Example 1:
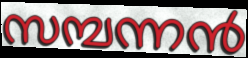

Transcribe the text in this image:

സമ്പന്നൻ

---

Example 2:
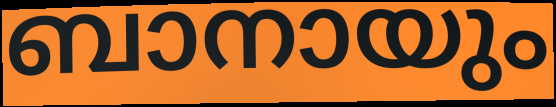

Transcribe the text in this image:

ബാനായും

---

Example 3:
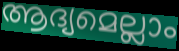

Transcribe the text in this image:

ആദ്യമെല്ലാം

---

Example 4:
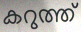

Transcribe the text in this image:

കറുത്ത്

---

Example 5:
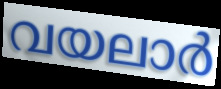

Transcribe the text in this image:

വയലാർ